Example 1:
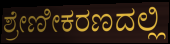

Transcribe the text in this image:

ಶ್ರೇಣೀಕರಣದಲ್ಲಿ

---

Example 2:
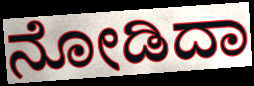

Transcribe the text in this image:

ನೋಡಿದಾ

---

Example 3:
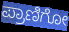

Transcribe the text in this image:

ಪ್ರಾಣಿಗೋ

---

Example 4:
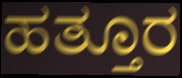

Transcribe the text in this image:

ಹತ್ತೂರ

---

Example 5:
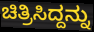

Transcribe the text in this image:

ಚಿತ್ರಿಸಿದ್ದನ್ನು